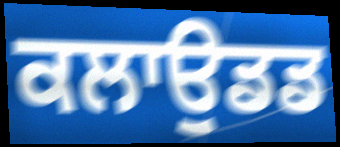
ਕਲਾਉਡਡ